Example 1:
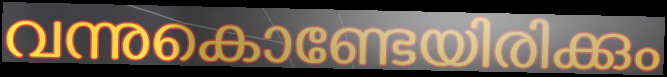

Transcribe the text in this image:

വന്നുകൊണ്ടേയിരിക്കും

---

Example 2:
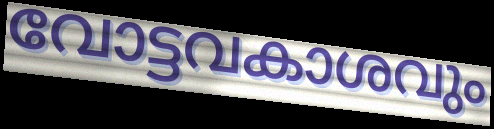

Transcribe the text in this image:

വോട്ടവകാശവും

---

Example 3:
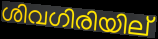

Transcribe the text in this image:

ശിവഗിരിയില്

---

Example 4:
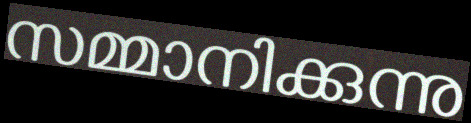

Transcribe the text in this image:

സമ്മാനിക്കുന്നു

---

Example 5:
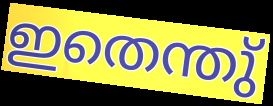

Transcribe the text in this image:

ഇതെന്തു്